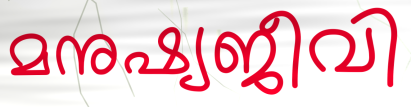
മനുഷ്യജീവി